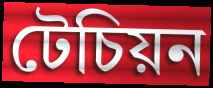
টেচিয়ন